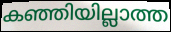
കഞ്ഞിയില്ലാത്ത